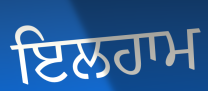
ਇਲਹਾਮ